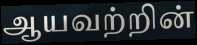
ஆயவற்றின்